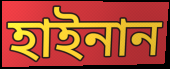
হাইনান